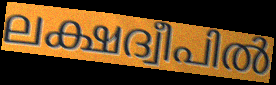
ലക്ഷദ്വീപിൽ